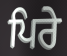
ਪਿਰੇ